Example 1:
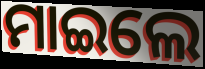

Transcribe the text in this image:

ମାଇଲେ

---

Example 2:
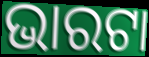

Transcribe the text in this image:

ଭାରଟା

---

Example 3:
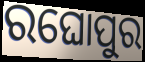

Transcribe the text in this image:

ରଘୋପୁର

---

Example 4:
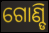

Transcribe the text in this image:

ଗୋଣ୍ଡି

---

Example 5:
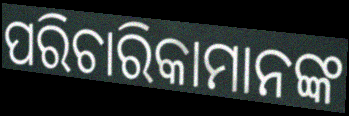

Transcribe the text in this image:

ପରିଚାରିକାମାନଙ୍କ